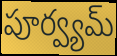
పూర్వ్యమ్